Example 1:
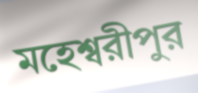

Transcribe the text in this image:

মহেশ্বরীপুর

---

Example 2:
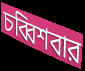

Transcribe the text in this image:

চব্বিশবার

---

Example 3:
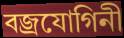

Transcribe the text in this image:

বজ্রযোগিনী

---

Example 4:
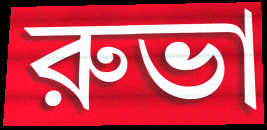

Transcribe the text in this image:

রুভা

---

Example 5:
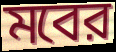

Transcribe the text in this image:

মবের